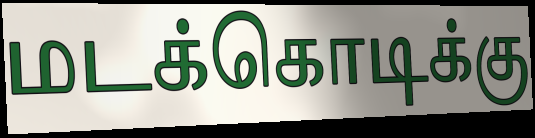
மடக்கொடிக்கு